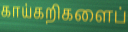
காய்கறிகளைப்